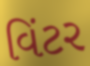
વિંટર